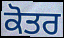
ਕੋਤਰ